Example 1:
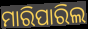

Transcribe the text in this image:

ମାରିପାରିଲ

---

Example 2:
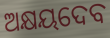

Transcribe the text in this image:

ଅକ୍ଷୟଦେବ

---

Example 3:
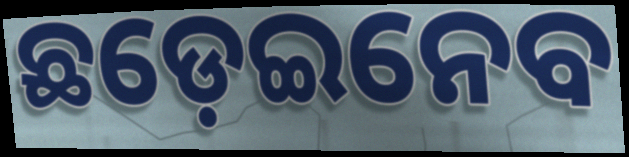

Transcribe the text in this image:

ଛଡ଼େଇନେବ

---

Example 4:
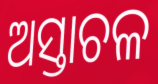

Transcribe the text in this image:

ଅସ୍ତାଚଳ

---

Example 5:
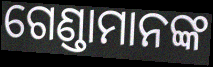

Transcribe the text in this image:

ଗେଣ୍ଡାମାନଙ୍କ